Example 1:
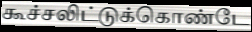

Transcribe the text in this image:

கூச்சலிட்டுக்கொண்டே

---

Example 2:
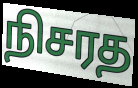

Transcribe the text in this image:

நிசரத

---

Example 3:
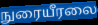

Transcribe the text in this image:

நுரையீரலை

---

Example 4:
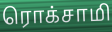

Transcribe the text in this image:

ரொக்சாமி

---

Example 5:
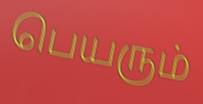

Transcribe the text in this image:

பெயரும்